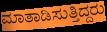
ಮಾತಾಡಿಸುತ್ತಿದ್ದರು